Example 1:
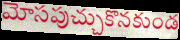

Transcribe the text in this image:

మోసపుచ్చుకొనకుండ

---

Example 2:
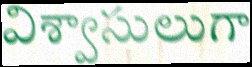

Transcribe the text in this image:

విశ్వాసులుగా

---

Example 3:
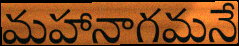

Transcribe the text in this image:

మహానాగమనే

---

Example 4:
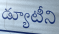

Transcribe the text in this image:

డ్యూటీని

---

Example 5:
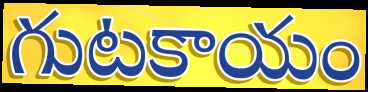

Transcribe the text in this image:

గుటకాయం